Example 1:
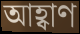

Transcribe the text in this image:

আহ্বাণ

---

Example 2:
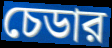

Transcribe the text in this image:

চেডার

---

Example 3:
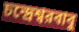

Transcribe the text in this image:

চন্দ্রেশ্বরবাবু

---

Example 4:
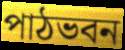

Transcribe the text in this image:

পাঠভবন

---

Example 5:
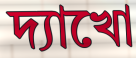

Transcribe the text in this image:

দ্যাখো